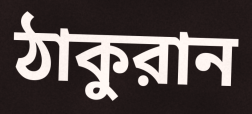
ঠাকুরান